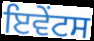
ਇਵੇੰਟਸ